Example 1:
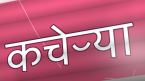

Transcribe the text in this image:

कचेऱ्या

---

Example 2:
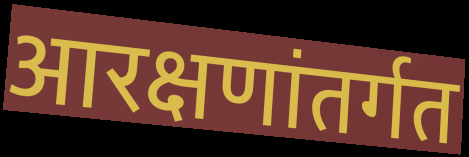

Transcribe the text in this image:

आरक्षणांतर्गत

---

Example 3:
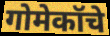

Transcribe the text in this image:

गोमेकॉचे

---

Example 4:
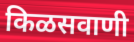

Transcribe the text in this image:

किळसवाणी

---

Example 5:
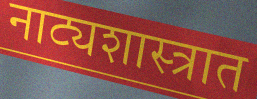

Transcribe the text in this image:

नाट्यशास्त्रात